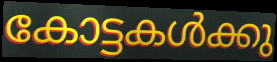
കോട്ടകൾക്കു